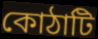
কোঠাটি